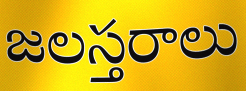
జలస్తరాలు